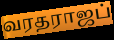
வரதராஜப்